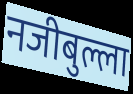
नजीबुल्ला